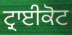
ਟ੍ਰਾਈਕੋਟ